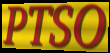
PTSO